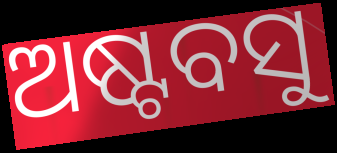
ଅଷ୍ଟବସୁ